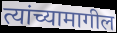
त्यांच्यामागील